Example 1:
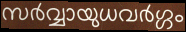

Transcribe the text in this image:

സർവ്വായുധവർഗ്ഗം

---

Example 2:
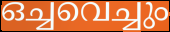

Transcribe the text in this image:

ഒച്ചവെച്ചും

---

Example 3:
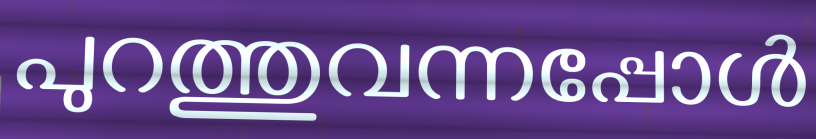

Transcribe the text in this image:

പുറത്തുവന്നപ്പോൾ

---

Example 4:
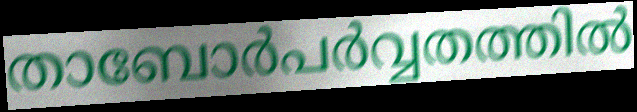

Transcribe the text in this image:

താബോർപർവ്വതത്തിൽ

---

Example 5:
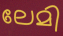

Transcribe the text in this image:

ലേമി